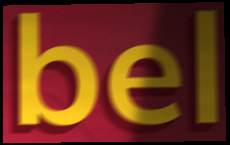
bel